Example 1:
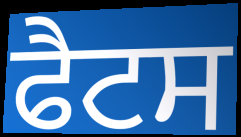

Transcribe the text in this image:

ਫੈਟਸ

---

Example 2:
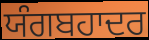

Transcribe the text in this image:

ਯੰਗਬਹਾਦਰ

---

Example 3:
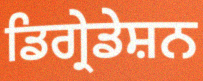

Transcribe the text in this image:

ਡਿਗ੍ਰੇਡੇਸ਼ਨ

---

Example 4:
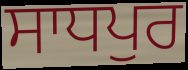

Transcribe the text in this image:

ਸਾਧਪੁਰ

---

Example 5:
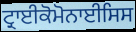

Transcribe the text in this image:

ਟ੍ਰਾਈਕੋਮੋਨਾਈਸਿਸ